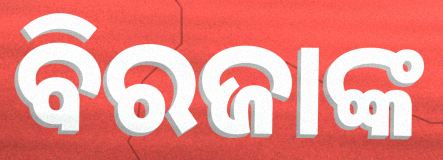
ବିରଜାଙ୍କ